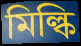
মিল্কি